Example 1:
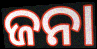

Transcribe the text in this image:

ଜନା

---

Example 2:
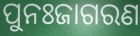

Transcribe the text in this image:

ପୁନଃଜାଗରଣ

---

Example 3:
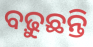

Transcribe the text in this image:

ବଢ଼ୁଛନ୍ତି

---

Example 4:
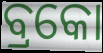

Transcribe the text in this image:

ବ୍ରକୋ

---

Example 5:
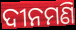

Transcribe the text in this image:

ଦୀନମଣି